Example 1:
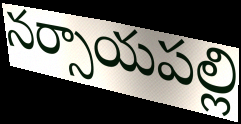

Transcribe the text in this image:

నర్సాయపల్లి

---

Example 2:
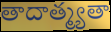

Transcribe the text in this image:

తాదాత్మ్యతా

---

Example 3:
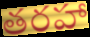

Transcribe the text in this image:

తరహా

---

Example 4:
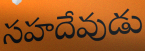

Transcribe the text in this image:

సహదేవుడు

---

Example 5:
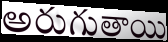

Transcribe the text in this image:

అరుగుతాయి